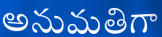
అనుమతిగా